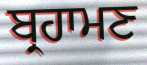
ਬ੍ਰਹਾਮਣ